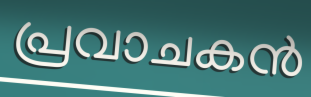
പ്രവാചകൻ